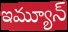
ఇమ్యూన్